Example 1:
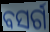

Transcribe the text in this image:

ବସର୍ଗ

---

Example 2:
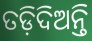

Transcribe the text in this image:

ତଡ଼ିଦିଅନ୍ତି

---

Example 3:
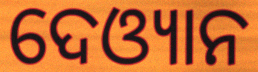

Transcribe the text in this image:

ଦେଓ୍ୟାନ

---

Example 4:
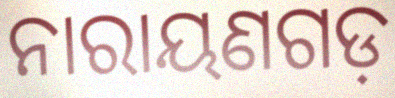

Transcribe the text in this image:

ନାରାୟଣଗଡ଼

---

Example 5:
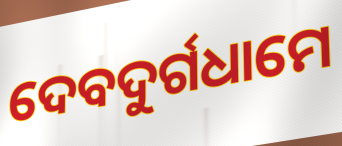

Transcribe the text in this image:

ଦେବଦୁର୍ଗଧାମେ